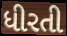
ધીરતી